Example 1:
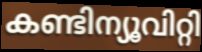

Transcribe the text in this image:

കണ്ടിന്യൂവിറ്റി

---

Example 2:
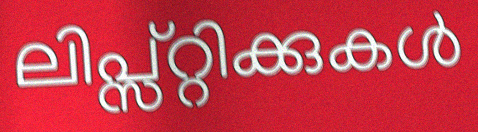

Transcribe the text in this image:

ലിപ്സ്റ്റിക്കുകൾ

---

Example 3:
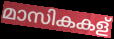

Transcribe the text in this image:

മാസികകള്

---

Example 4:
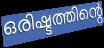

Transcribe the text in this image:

ഒരിഷ്ടത്തിന്റെ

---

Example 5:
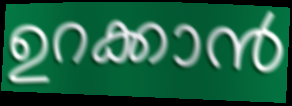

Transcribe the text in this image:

ഉറക്കാൻ